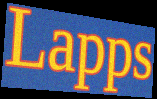
Lapps